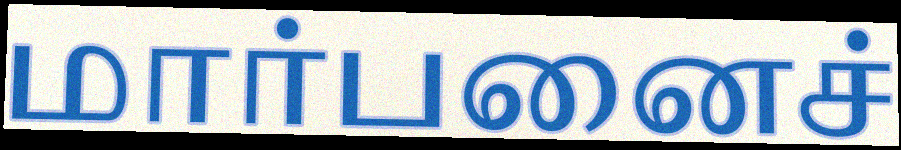
மார்பனைச்